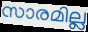
സാരമില്ല